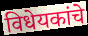
विधेयकांचे